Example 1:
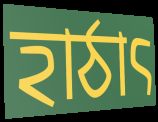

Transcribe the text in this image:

হাঠাৎ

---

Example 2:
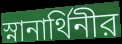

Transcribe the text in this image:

স্নানার্থিনীর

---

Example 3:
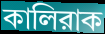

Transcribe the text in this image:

কালিরাক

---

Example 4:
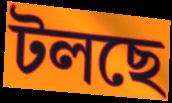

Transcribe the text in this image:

টলছে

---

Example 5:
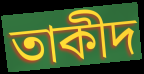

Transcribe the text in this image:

তাকীদ